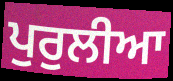
ਪੁਰੁਲੀਆ